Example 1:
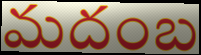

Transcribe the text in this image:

మదంబ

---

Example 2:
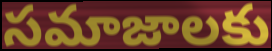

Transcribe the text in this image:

సమాజాలకు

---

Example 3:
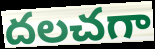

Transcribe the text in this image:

దలచగా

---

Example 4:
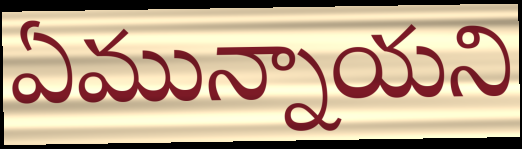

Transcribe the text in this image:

ఏమున్నాయని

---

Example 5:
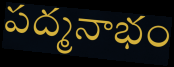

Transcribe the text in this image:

పద్మనాభం